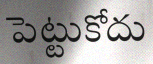
పెట్టుకోదు